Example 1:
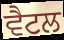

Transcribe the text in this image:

ਵੈਟਲ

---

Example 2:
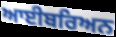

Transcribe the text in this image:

ਆਈਬਰਿਅਨ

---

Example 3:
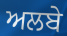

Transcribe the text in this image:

ਅਲਬੇ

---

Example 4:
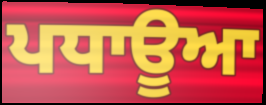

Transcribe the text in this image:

ਪਧਾਊਆ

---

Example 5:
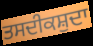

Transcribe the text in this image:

ਤਸਦੀਕਸ਼ੁਦਾ